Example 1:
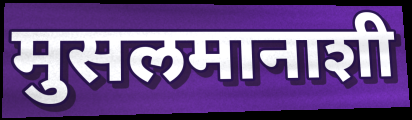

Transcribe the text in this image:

मुसलमानाशी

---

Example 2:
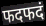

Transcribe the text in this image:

फदफदं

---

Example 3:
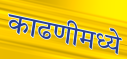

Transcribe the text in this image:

काढणीमध्ये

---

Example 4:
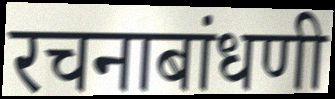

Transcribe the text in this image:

रचनाबांधणी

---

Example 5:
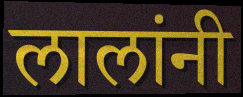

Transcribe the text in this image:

लालांनी